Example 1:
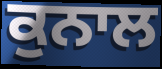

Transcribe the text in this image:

ਕੁਨਾਲ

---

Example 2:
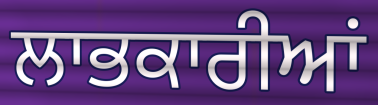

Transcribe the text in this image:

ਲਾਭਕਾਰੀਆਂ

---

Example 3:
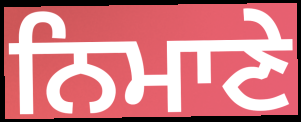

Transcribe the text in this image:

ਨਿਮਾਣੇ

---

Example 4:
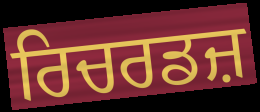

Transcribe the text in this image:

ਰਿਚਰਡਜ਼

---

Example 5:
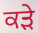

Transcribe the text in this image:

ਕੜੇ